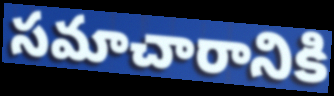
సమాచారానికి